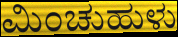
ಮಿಂಚುಹುಳು